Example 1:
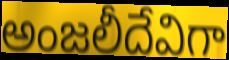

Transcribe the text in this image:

అంజలీదేవిగా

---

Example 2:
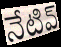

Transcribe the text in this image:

నేటివ్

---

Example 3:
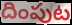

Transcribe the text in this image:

దింపుట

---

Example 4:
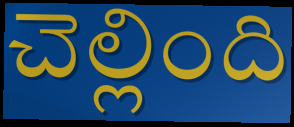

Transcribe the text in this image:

చెల్లింది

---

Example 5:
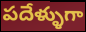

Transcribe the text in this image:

పదేళ్ళుగా